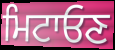
ਮਿਟਾਓਣ